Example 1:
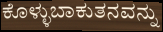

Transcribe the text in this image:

ಕೊಳ್ಳುಬಾಕುತನವನ್ನು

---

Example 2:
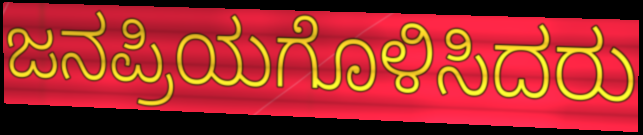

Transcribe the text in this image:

ಜನಪ್ರಿಯಗೊಳಿಸಿದರು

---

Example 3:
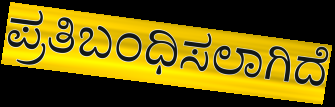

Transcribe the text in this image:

ಪ್ರತಿಬಂಧಿಸಲಾಗಿದೆ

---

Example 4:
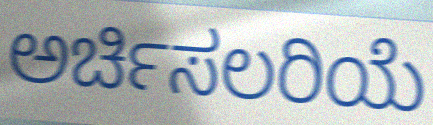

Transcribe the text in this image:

ಅರ್ಚಿಸಲರಿಯೆ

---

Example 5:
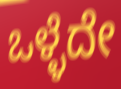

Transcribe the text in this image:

ಒಳ್ಳೆದೇ